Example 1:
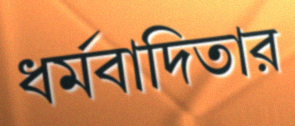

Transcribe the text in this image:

ধর্মবাদিতার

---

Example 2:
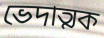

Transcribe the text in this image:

ভেদাত্মক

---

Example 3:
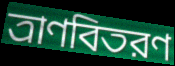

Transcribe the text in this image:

ত্রাণবিতরণ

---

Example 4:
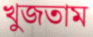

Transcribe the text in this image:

খুজতাম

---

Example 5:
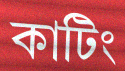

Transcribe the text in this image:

কাটিং